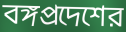
বঙ্গপ্রদেশের